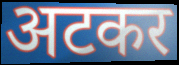
अटकर